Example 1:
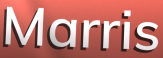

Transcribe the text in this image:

Marris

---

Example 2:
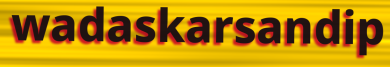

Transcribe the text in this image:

wadaskarsandip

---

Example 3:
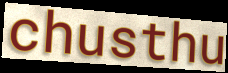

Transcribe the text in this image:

chusthu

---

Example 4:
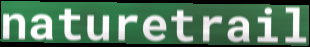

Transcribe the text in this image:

naturetrail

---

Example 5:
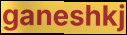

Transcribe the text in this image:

ganeshkj